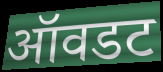
ऑवडट